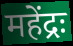
महेंद्रः